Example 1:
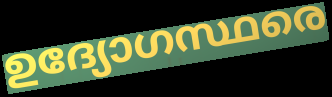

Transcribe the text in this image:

ഉദ്യോഗസ്ഥരെ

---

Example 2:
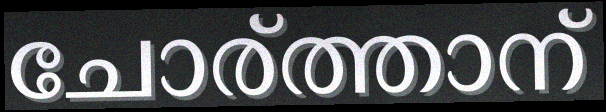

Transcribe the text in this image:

ചോര്ത്താന്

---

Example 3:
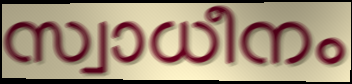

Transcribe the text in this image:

സ്വാധീനം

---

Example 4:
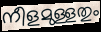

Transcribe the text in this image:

നീളമുള്ളതും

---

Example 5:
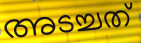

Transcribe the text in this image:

അടച്ചത്